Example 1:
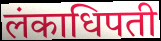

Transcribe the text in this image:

लंकाधिपती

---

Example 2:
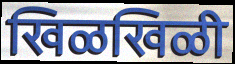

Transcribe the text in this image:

खिळखिळी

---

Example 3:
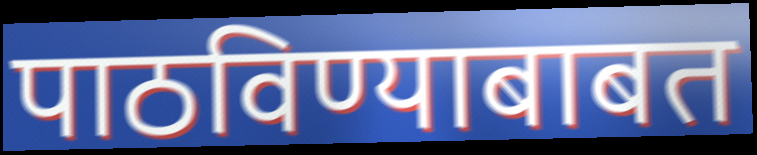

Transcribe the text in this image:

पाठविण्याबाबत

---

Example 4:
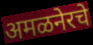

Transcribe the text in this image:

अमळनेरचे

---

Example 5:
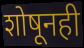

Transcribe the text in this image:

शोषूनही